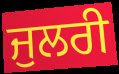
ਜੁਲਰੀ